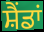
ਸ਼ੈਂਡਾਂ